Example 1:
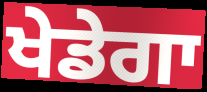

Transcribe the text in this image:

ਖੇਡੇਗਾ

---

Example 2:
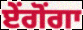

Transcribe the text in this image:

ਏਂਗੋਂਗਾ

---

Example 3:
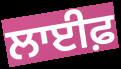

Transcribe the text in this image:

ਲਾਈਫ਼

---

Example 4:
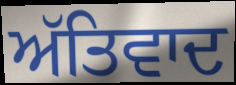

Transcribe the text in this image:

ਅੱਤਿਵਾਦ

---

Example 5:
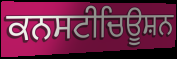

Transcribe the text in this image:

ਕਨਸਟੀਚਿਊਸ਼ਨ